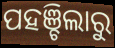
ପହଞ୍ଚିଲାରୁ